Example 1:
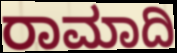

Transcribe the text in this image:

ರಾಮಾದಿ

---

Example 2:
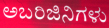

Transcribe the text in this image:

ಅಬರಿಜಿನಿಗಳು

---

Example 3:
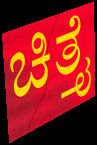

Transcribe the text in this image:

ಚಿತ್ತೈ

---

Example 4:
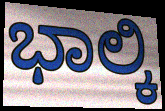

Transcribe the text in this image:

ಭಾಲ್ಕಿ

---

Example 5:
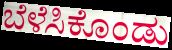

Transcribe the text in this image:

ಬೆಳೆಸಿಕೊಂಡು